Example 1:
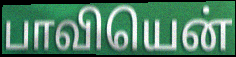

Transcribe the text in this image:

பாவியென்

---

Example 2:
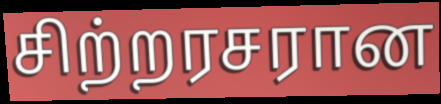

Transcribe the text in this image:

சிற்றரசரான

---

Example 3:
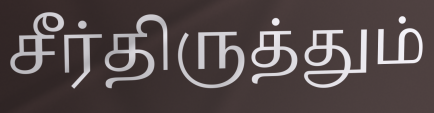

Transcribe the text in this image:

சீர்திருத்தும்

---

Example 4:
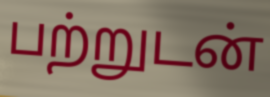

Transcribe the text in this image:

பற்றுடன்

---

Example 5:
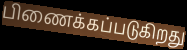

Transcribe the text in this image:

பிணைக்கப்படுகிறது